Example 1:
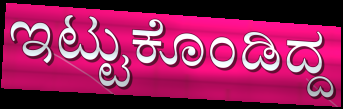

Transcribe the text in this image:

ಇಟ್ಟುಕೊಂಡಿದ್ದ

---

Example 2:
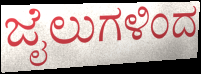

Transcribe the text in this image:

ಜೈಲುಗಳಿಂದ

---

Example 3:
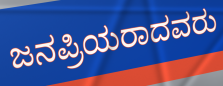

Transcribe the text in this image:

ಜನಪ್ರಿಯರಾದವರು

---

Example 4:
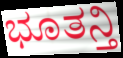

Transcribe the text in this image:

ಭೂತನ್ತಿ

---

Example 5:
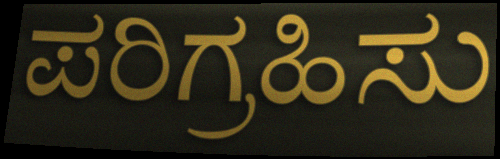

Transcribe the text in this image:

ಪರಿಗ್ರಹಿಸು